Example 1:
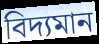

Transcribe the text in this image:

বিদ্যমান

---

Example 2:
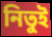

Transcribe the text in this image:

নিতুই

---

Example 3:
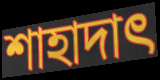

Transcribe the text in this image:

শাহাদাৎ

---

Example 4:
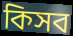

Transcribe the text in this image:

কিসব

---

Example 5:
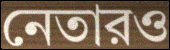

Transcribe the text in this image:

নেতারও